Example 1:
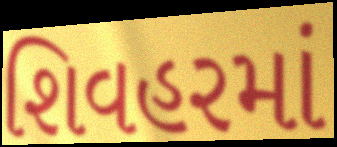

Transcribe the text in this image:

શિવહરમાં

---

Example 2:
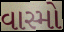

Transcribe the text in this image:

વાસ્મો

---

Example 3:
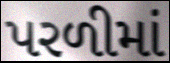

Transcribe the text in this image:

પરળીમાં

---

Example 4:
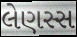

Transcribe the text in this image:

લેણસ્સ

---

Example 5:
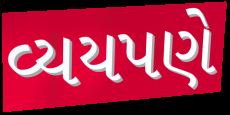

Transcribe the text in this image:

વ્યયપણે